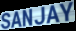
SANJAY